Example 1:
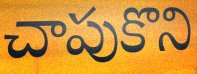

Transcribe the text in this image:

చాపుకొని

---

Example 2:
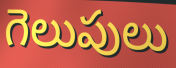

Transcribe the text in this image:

గెలుపులు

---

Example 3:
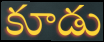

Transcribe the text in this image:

కూడు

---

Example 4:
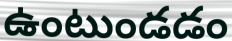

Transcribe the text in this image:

ఉంటుండడం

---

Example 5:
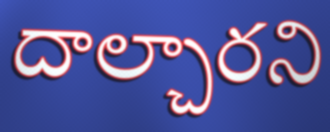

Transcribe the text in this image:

దాల్చారని